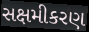
સક્ષમીકરણ